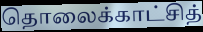
தொலைக்காட்சித்